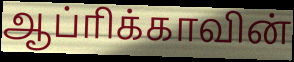
ஆப்ரிக்காவின்